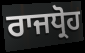
ਰਾਜਧ੍ਰੋਹ